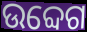
ଉବ୍ଦେଗ